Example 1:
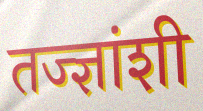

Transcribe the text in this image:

तज्ज्ञांशी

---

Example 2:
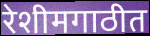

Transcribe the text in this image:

रेशीमगाठीत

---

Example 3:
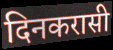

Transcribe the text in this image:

दिनकरासी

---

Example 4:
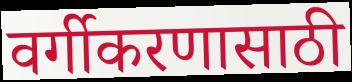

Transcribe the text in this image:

वर्गीकरणासाठी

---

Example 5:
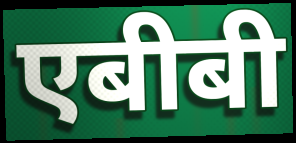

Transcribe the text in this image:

एबीबी